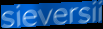
sieversii